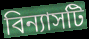
বিন্যাসটি